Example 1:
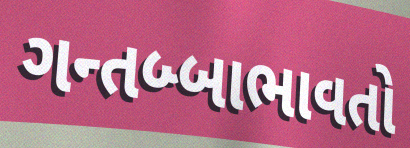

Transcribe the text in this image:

ગન્તબ્બાભાવતો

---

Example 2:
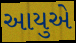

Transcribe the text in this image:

આયુએ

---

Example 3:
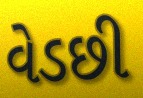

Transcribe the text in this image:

વેડછી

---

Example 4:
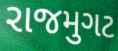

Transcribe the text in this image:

રાજમુગટ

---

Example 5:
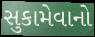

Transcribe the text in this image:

સુકામેવાનો